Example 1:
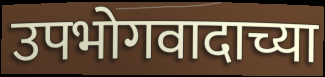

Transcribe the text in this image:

उपभोगवादाच्या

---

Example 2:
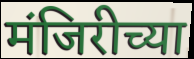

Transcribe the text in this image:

मंजिरीच्या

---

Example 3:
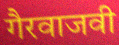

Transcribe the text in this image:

गैरवाजवी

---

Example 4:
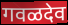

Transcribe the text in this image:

गवळदेव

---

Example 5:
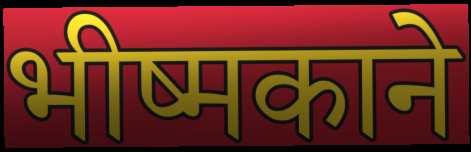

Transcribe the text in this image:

भीष्मकाने